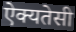
ऐक्यतेसी